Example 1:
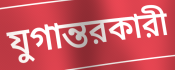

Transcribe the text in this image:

যুগান্তরকারী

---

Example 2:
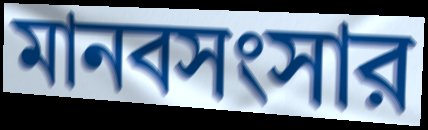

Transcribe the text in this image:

মানবসংসার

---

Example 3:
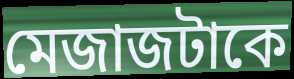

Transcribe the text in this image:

মেজাজটাকে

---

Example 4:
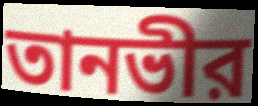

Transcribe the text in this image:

তানভীর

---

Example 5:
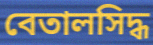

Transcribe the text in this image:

বেতালসিদ্ধ